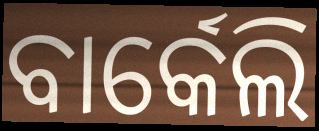
ବାର୍କେଲି